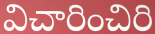
విచారించిరి